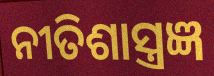
ନୀତିଶାସ୍ତ୍ରଜ୍ଞ